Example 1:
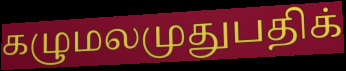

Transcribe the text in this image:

கழுமலமுதுபதிக்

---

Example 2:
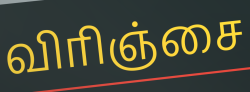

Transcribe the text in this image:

விரிஞ்சை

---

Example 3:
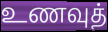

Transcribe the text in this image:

உணவுத்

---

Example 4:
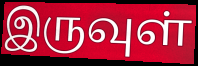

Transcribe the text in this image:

இருவுள்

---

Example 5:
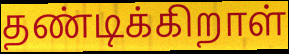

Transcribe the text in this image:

தண்டிக்கிறாள்